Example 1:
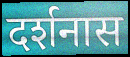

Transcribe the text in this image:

दर्शनास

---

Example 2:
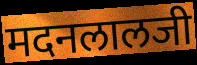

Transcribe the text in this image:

मदनलालजी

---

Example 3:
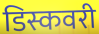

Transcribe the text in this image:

डिस्कवरी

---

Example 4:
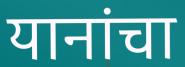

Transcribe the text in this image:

यानांचा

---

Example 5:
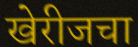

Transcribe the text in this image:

खेरीजचा